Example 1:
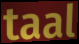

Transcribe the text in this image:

taal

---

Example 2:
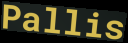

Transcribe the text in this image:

Pallis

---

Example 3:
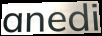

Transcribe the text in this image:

anedi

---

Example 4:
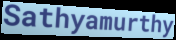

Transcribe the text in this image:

Sathyamurthy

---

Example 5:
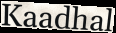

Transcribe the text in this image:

Kaadhal